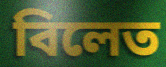
বিলেত